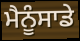
ਮੈਨੂੰਸਾਡੇ